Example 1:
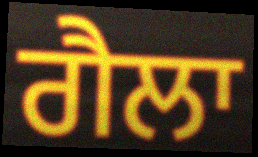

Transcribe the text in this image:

ਗੈਲਾ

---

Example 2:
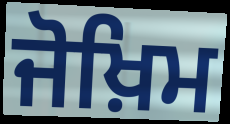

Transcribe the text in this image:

ਜੋਖ਼ਿਮ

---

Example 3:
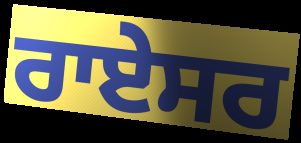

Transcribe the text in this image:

ਰਾਏਸਰ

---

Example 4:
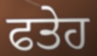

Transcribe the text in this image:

ਫਤੇਹ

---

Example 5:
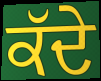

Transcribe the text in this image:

ਕੱਦੇ